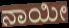
ನಾಯೀ